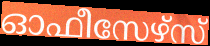
ഓഫീസേഴ്സ്